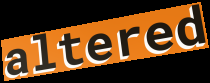
altered